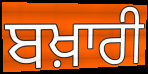
ਬਖ਼ਾਰੀ